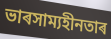
ভাৰসাম্যহীনতাৰ